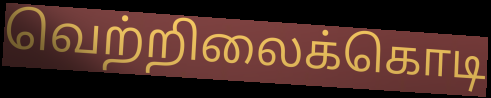
வெற்றிலைக்கொடி